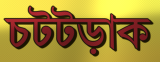
চটটড়াক